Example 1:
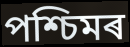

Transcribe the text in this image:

পশ্চিমৰ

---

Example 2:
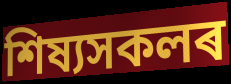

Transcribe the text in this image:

শিষ্যসকলৰ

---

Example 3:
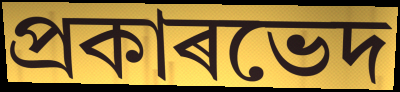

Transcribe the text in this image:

প্ৰকাৰভেদ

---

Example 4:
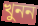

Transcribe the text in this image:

খুনন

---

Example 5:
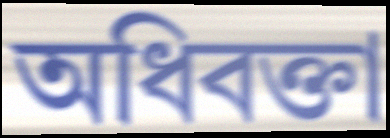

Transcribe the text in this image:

অধিবক্তা